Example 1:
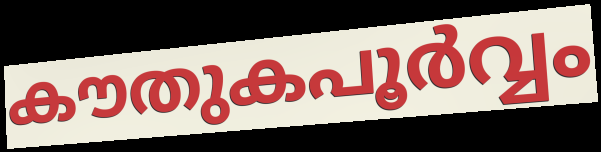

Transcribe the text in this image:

കൗതുകപൂർവ്വം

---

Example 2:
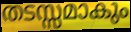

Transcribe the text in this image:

തടസ്സമാകും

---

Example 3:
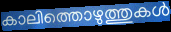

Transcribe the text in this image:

കാലിത്തൊഴുത്തുകൾ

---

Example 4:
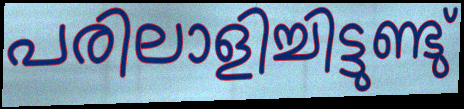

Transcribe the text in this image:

പരിലാളിച്ചിട്ടുണ്ടു്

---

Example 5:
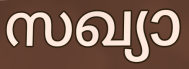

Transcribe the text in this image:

സഖ്യാ